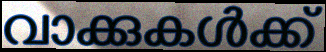
വാക്കുകൾക്ക്